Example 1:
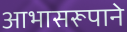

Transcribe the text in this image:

आभासरूपाने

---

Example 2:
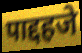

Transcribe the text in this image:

पाद्दहजे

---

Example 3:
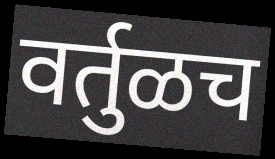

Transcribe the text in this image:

वर्तुळच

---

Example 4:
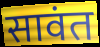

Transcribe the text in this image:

सावंत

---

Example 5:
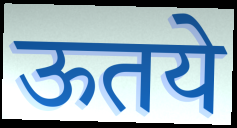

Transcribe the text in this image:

ऊतये